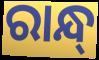
ରାନ୍ଧ୍